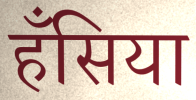
हँसिया